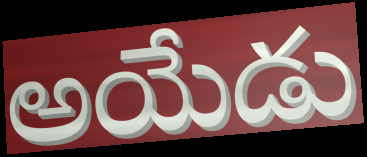
అయేడు